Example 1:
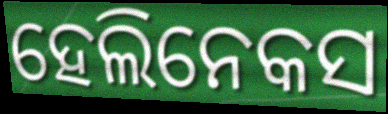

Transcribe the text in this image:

ହେଲିନେକସ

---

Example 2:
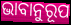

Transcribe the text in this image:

ଭାବାନୁରୂପ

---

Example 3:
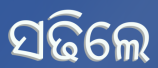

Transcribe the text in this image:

ସଢିଲେ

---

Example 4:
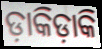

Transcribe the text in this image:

ଡ଼ାକିଡ଼ାକି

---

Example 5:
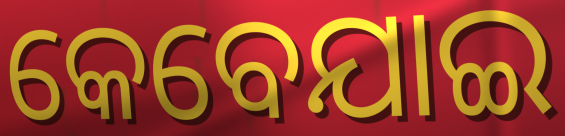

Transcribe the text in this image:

କେବେଯାଇ